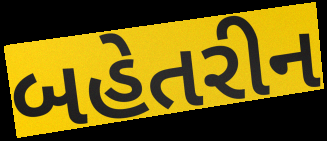
બહેતરીન